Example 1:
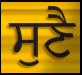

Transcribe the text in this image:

ਸੁਣੈ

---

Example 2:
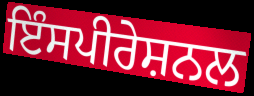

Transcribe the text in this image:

ਇੰਸਪੀਰੇਸ਼ਨਲ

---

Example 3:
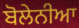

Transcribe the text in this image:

ਬੋਲੇਨੀਆ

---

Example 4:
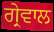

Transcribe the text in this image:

ਗ੍ਰੇਵਾਲ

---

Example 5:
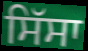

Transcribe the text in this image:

ਸਿੱਸਾ